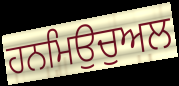
ਹਨਮਿਉਚੁਅਲ